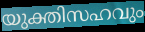
യുക്തിസഹവും